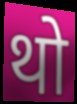
थो